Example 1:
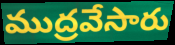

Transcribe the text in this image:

ముద్రవేసారు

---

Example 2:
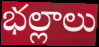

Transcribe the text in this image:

భల్లాలు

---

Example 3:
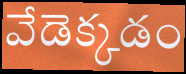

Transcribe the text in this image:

వేడెక్కడం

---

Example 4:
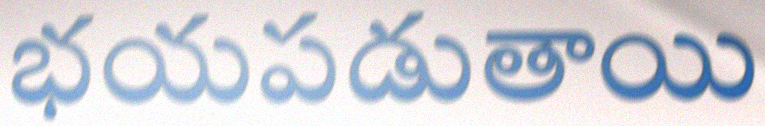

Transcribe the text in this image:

భయపడుతాయి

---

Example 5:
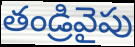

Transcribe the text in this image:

తండ్రివైపు